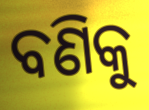
ବଣିକୁ